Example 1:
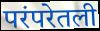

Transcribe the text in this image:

परंपरेतली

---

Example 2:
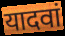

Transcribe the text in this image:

यादवां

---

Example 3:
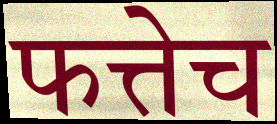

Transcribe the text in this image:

फत्तेच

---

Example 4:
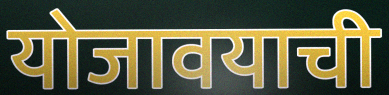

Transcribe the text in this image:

योजावयाची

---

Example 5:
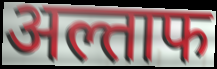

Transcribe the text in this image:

अल्ताफ